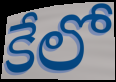
కేలో